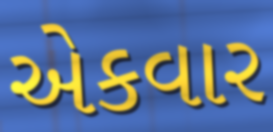
એકવાર